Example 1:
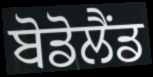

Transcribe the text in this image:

ਬੋਡੋਲੈਂਡ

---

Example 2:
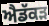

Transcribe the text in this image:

ਐਡੱਕੜ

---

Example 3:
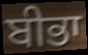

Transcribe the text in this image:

ਬੀਭਾ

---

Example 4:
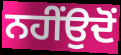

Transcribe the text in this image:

ਨਹੀਂਉਦੋਂ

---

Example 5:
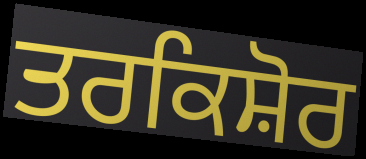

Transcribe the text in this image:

ਤਰਕਿਸ਼ੋਰ